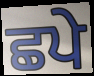
ਛਪੇ